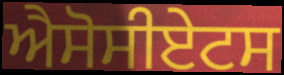
ਐਸੋਸੀਏਟਸ